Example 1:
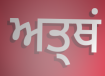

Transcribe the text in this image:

ਅਤ੍ਥਂ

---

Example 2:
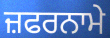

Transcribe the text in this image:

ਜ਼ਫਰਨਾਮੇ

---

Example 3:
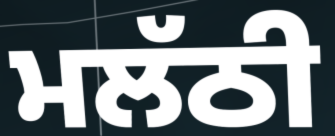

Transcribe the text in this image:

ਮਲੱਠੀ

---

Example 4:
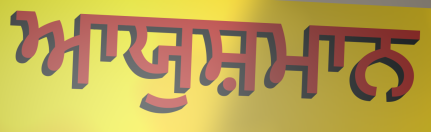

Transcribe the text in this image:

ਆਯੁਸ਼ਮਾਨ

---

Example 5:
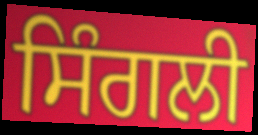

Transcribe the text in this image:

ਸਿੰਗਲੀ